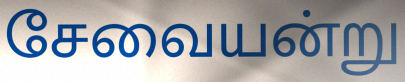
சேவையன்று